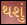
થશું